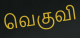
வெகுவி